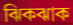
ঝিকঝাক